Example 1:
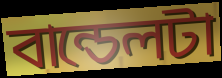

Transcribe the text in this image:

বান্ডেলটা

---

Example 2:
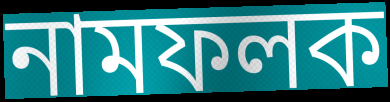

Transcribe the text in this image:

নামফলক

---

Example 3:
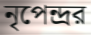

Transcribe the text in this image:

নৃপেন্দ্রর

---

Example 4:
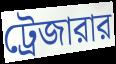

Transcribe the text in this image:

ট্রেজারার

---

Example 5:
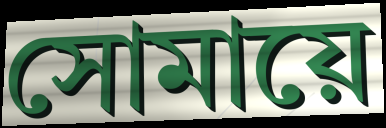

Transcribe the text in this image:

সোমায়ে